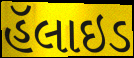
હૅલાઇડ